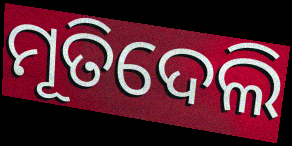
ମୂତିଦେଲି